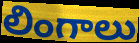
లింగాలు